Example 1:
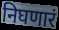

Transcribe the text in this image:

निघणारं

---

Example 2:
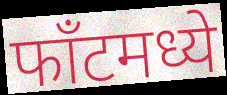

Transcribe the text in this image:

फाँटमध्ये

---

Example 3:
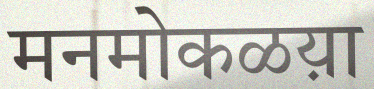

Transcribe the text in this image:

मनमोकळय़ा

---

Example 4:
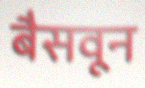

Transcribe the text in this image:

बैसवून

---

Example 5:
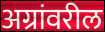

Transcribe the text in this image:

अग्रांवरील